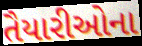
તૈયારીઓના